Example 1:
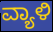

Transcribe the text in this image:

ವ್ಯಾಳಿ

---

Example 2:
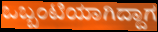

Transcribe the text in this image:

ಒಬ್ಬಂಟಿಯಾಗಿದ್ದಾಗ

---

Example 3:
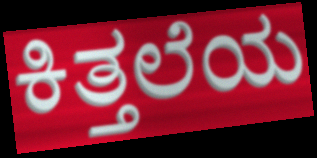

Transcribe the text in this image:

ಕಿತ್ತಲೆಯ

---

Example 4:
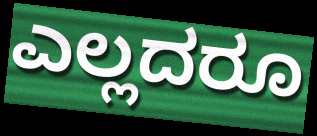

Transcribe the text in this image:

ಎಲ್ಲದರೂ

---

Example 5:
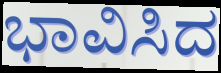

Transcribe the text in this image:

ಭಾವಿಸಿದ